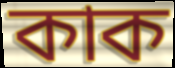
কাক